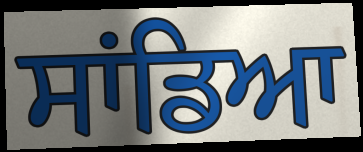
ਸਾਂਡਿਆ